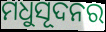
ମଧୁସୂଦନର